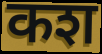
कश